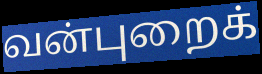
வன்புறைக்